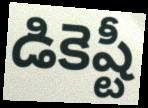
డికెష్టీ